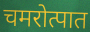
चमरोत्पात